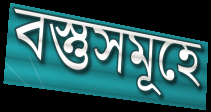
বস্তুসমূহে